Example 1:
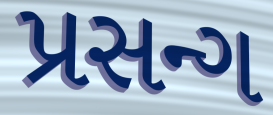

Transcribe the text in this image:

પ્રસન્ગ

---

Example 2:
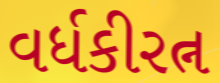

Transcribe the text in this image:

વર્ધકીરત્ન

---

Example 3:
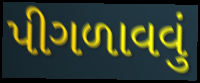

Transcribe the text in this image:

પીગળાવવું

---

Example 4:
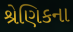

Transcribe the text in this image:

શ્રેણિકના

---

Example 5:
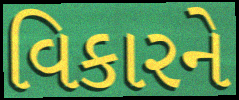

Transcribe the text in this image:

વિકારને